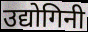
उद्योगिनी